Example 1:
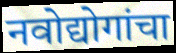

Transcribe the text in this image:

नवोद्योगांचा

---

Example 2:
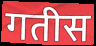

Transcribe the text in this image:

गतीस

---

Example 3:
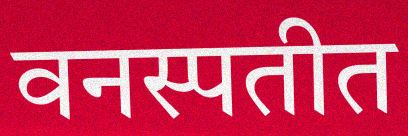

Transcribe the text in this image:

वनस्पतीत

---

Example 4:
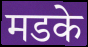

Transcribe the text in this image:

मडके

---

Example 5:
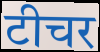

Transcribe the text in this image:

टीचर